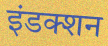
इंडक्शन